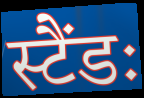
स्टैंडः